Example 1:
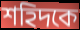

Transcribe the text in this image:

শহিদকে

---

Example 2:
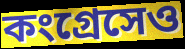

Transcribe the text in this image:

কংগ্রেসেও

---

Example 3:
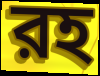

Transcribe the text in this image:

রহ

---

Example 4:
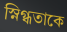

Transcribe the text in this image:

স্নিগ্ধতাকে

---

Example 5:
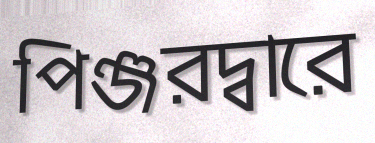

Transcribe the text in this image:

পিঞ্জরদ্বারে